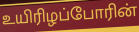
உயிரிழப்போரின்